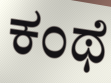
ಕಂಥೆ